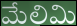
మేలిమి